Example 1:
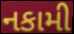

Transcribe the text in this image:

નકામી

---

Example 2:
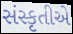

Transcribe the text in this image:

સંસ્કૃતીએ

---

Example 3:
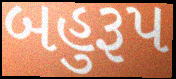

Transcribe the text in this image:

બહુરૂપ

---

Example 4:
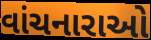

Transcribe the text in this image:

વાંચનારાઓ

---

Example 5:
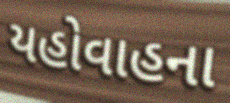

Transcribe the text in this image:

યહોવાહના